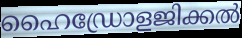
ഹൈഡ്രോളജിക്കൽ